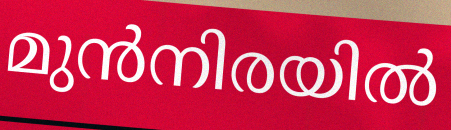
മുൻനിരയിൽ